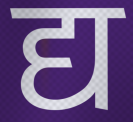
द्य